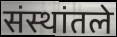
संस्थांतले